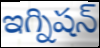
ఇగ్నిషన్